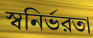
স্বনির্ভরতা